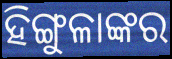
ହିଙ୍ଗୁଳାଙ୍କର